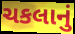
ચકલાનું